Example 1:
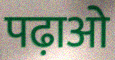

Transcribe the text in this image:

पढ़ाओ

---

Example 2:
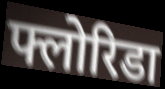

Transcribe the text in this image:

फ्लोरिडा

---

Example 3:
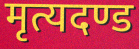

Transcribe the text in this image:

मृत्यदण्ड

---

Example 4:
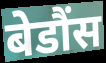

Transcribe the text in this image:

बेडौंस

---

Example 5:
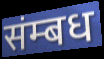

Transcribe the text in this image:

संम्बध